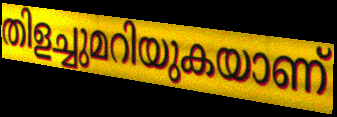
തിളച്ചുമറിയുകയാണ്